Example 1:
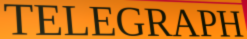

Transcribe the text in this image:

TELEGRAPH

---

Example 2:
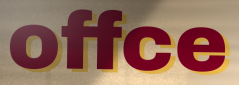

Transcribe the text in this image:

offce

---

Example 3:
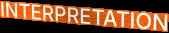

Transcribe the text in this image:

INTERPRETATION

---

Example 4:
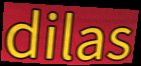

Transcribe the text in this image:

dilas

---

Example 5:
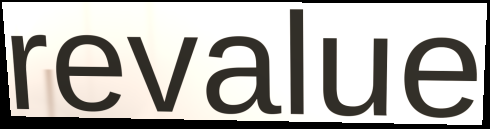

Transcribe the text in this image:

revalue